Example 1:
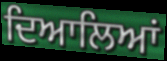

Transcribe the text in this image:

ਦਿਆਲਿਆਂ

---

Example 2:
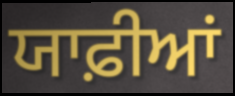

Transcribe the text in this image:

ਯਾਫ਼ੀਆਂ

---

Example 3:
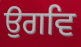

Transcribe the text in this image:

ਉਗਵਿ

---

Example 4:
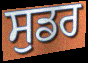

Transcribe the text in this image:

ਸੁਡਰ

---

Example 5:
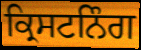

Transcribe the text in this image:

ਕ੍ਰਿਸਟਨਿੰਗ